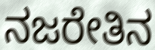
ನಜರೇತಿನ